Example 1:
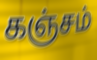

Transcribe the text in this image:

கஞ்சம்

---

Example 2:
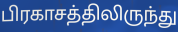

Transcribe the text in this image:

பிரகாசத்திலிருந்து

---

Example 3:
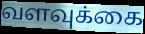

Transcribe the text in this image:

வளவுக்கை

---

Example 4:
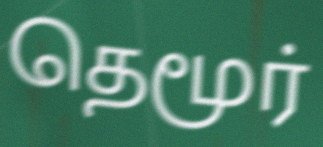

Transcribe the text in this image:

தெமூர்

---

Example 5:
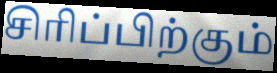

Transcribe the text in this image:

சிரிப்பிற்கும்